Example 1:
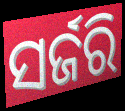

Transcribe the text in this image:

ସର୍ଜରି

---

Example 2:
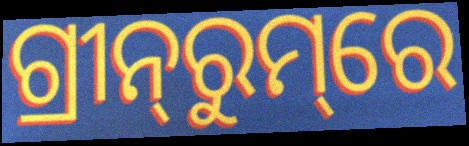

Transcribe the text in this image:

ଗ୍ରୀନ୍‌ରୁମ୍‌ରେ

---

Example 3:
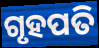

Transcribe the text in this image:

ଗୃହପତି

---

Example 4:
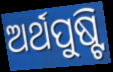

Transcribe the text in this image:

ଅର୍ଥପୁଷ୍ଟି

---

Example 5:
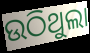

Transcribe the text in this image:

ଉଠିଥୁଲା